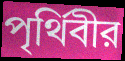
পৃর্থিবীর